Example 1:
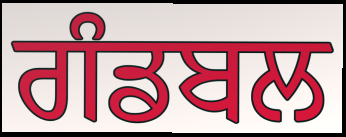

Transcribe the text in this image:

ਗੰਡਬਲ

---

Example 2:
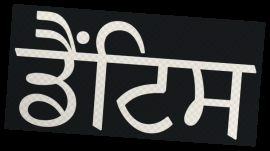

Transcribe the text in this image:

ਡੈਂਟਿਸ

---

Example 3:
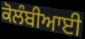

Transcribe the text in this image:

ਕੋਲੰਬੀਆਈ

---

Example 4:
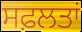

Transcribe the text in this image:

ਸਫ਼ਲਤਾਂ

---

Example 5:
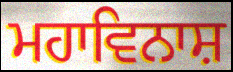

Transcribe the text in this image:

ਮਹਾਵਿਨਾਸ਼